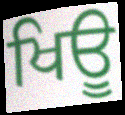
ਖਿਊ